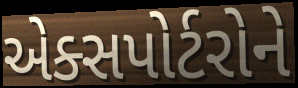
એક્સપોર્ટરોને